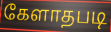
கேளாதபடி